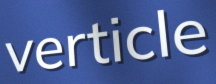
verticle